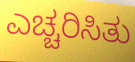
ಎಚ್ಚರಿಸಿತು